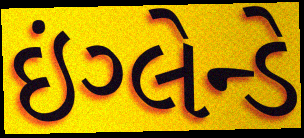
ઇંગ્લેન્ડે